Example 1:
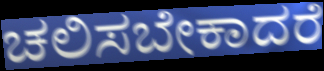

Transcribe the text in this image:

ಚಲಿಸಬೇಕಾದರೆ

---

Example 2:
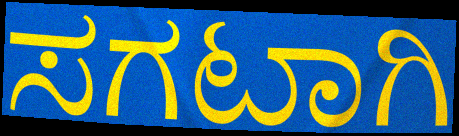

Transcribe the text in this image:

ಸಗಟಾಗಿ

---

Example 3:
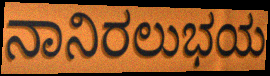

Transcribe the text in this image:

ನಾನಿರಲುಭಯ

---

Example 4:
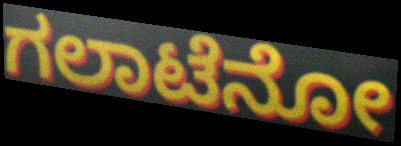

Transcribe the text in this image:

ಗಲಾಟೆನೋ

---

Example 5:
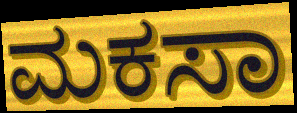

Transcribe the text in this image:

ಮಕಸಾ